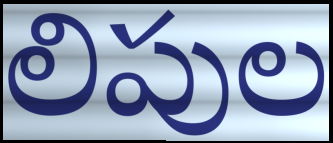
లిపుల